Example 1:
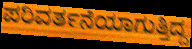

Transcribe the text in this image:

ಪರಿವರ್ತನೆಯಾಗುತ್ತಿದ್ದ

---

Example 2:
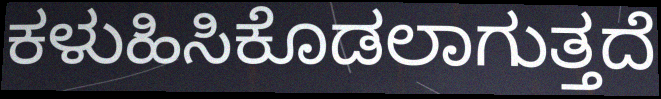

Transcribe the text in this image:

ಕಳುಹಿಸಿಕೊಡಲಾಗುತ್ತದೆ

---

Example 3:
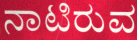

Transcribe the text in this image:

ನಾಟಿರುವ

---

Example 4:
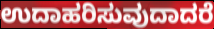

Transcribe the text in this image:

ಉದಾಹರಿಸುವುದಾದರೆ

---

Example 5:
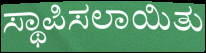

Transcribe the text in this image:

ಸ್ಥಾಪಿಸಲಾಯಿತು